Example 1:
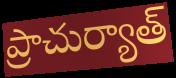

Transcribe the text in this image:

ప్రాచుర్యాత్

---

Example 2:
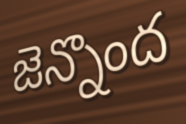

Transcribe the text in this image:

జెన్నొంద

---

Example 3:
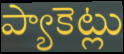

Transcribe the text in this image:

ప్యాకెట్లు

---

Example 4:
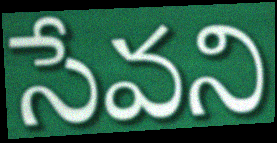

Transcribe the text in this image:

సేవని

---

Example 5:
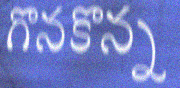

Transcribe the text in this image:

గొనకొన్న